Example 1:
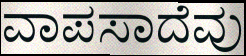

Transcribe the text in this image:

ವಾಪಸಾದೆವು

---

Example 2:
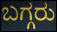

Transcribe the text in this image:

ಬಗ್ಗರು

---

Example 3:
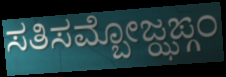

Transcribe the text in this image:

ಸತಿಸಮ್ಬೋಜ್ಝಙ್ಗಂ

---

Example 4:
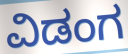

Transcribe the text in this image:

ವಿಡಂಗ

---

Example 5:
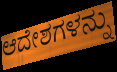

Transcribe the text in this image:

ಆದೇಶಗಳನ್ನು